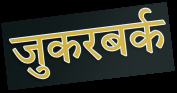
जुकरबर्क